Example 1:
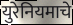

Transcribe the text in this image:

युरेनियमाचे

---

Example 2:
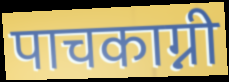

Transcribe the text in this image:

पाचकाग्नी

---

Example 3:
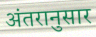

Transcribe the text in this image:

अंतरानुसार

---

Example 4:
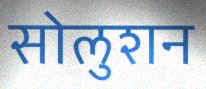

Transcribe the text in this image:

सोलुशन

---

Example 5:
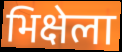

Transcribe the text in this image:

भिक्षेला